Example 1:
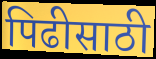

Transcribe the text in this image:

पिढीसाठी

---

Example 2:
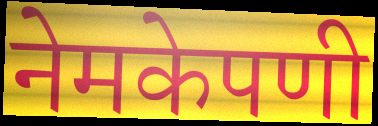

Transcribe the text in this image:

नेमकेपणी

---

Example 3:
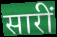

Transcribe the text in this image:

सारीं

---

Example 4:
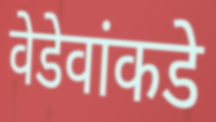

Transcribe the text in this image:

वेडेवांकडे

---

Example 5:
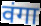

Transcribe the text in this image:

वंगा